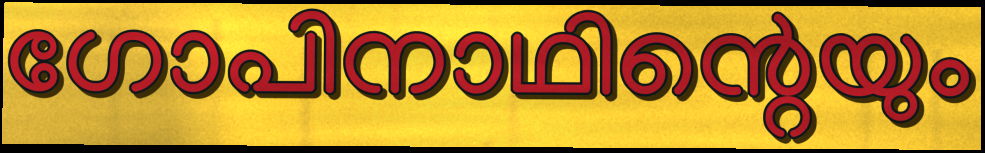
ഗോപിനാഥിന്റെയും